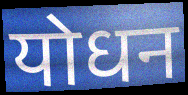
योधन